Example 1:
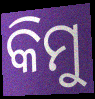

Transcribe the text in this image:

କିମୁ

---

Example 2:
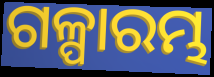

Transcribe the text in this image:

ଗଳ୍ପାରମ୍ଭ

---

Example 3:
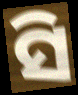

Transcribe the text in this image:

ସି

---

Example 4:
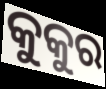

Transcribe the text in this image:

କୁକୁର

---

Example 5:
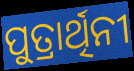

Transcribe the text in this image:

ପୁତ୍ରାର୍ଥିନୀ